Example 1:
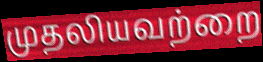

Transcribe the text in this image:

முதலியவற்றை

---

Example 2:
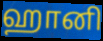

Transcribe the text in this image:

ஹானி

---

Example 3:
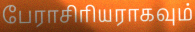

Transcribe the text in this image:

பேராசிரியராகவும்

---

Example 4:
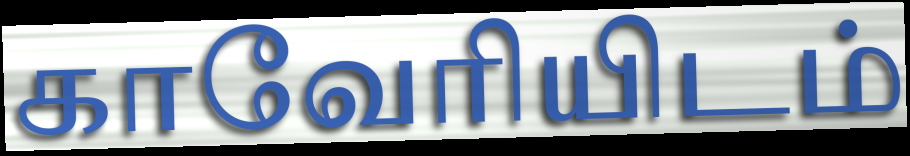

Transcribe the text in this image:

காவேரியிடம்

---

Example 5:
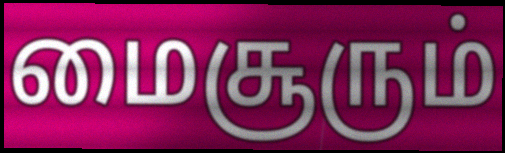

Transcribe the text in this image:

மைசூரும்